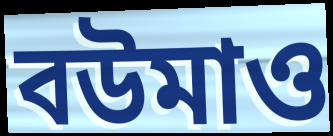
বউমাও